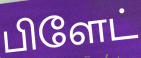
பிளேட்